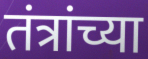
तंत्रांच्या